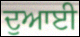
ਦੁਆਈ